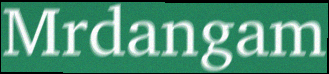
Mrdangam